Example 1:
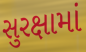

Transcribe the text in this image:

સુરક્ષામાં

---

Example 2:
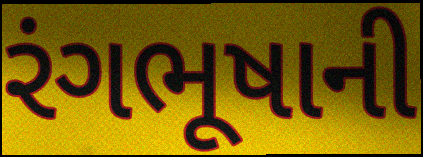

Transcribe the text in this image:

રંગભૂષાની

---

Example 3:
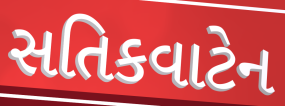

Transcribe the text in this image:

સતિકવાટેન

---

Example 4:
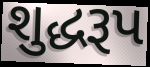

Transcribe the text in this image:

શુદ્ધરૂપ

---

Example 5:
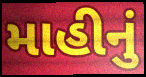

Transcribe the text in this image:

માહીનું